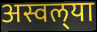
अस्वल्या